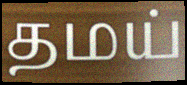
தமய்